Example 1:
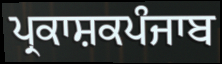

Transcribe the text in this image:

ਪ੍ਰਕਾਸ਼ਕਪੰਜਾਬ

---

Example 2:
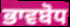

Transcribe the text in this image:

ਭਾਵਬੋਧ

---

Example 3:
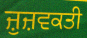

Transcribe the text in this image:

ਜ਼ੁਜ਼ਵਕਤੀ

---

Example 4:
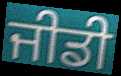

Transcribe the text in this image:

ਜੀਡੀ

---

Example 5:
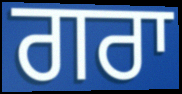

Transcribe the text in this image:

ਗਰਾ